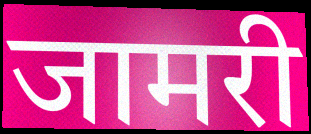
जामरी